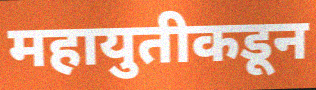
महायुतीकडून